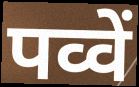
पव्वें